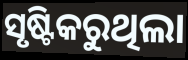
ସୃଷ୍ଟିକରୁଥିଲା